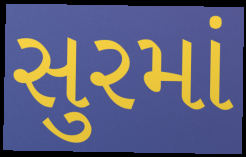
સુરમાં